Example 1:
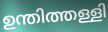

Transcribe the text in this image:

ഉന്തിത്തള്ളി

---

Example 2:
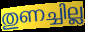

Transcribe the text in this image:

തുണച്ചില്ല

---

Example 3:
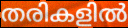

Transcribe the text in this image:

തരികളിൽ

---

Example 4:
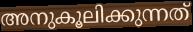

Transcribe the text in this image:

അനുകൂലിക്കുന്നത്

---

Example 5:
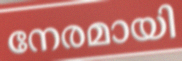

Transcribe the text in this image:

നേരമായി